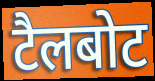
टैलबोट